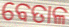
ବେତାଳ